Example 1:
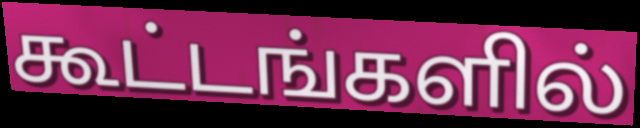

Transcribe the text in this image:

கூட்டங்களில்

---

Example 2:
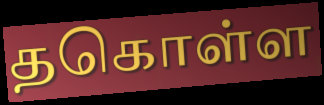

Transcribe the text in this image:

தகொள்ள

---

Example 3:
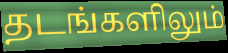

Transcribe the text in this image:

தடங்களிலும்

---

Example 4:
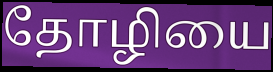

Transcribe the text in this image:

தோழியை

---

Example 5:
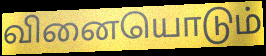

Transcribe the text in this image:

வினையொடும்